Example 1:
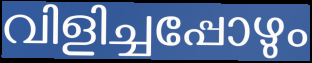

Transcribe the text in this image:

വിളിച്ചപ്പോഴും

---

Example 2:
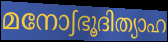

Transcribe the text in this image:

മനോഽഭൂദിത്യാഹ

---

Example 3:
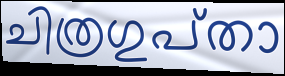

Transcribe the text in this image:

ചിത്രഗുപ്‌താ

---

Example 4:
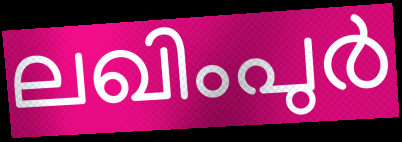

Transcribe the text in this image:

ലഖിംപുർ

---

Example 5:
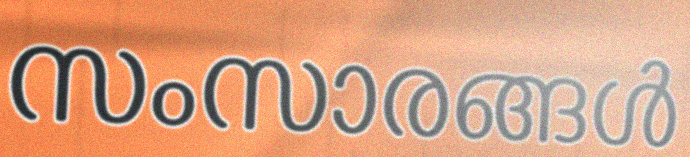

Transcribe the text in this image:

സംസാരങ്ങൾ